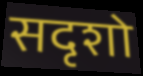
सदृशो